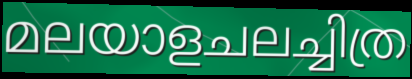
മലയാളചലച്ചിത്ര